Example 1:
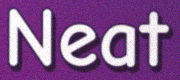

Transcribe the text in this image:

Neat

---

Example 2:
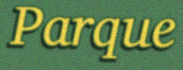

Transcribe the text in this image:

Parque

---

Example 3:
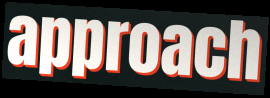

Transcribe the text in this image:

approach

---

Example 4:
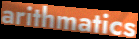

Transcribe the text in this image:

arithmatics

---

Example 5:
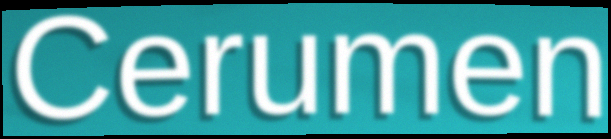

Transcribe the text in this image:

Cerumen